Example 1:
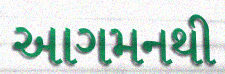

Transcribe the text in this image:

આગમનથી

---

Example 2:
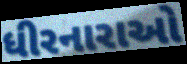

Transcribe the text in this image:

ધીરનારાઓ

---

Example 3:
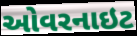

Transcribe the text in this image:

ઓવરનાઇટ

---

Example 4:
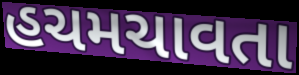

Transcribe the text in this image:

હચમચાવતા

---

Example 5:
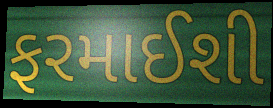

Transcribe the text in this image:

ફરમાઈશી